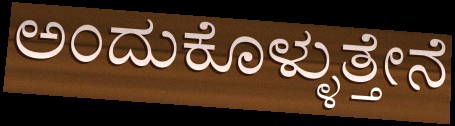
ಅಂದುಕೊಳ್ಳುತ್ತೇನೆ